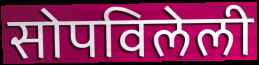
सोपविलेली